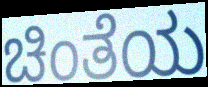
ಚಿಂತೆಯ